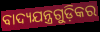
ବାଦ୍ୟଯନ୍ତ୍ରଗୁଡ଼ିକର